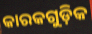
କାରକଗୁଡ଼ିକ